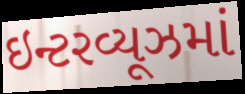
ઇન્ટરવ્યૂઝમાં